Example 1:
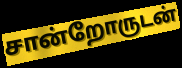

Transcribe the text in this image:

சான்றோருடன்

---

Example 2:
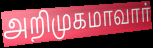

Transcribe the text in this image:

அறிமுகமாவார்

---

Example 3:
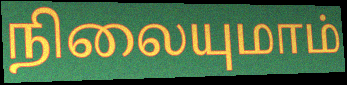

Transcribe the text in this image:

நிலையுமாம்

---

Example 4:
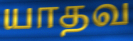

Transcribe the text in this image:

யாதவ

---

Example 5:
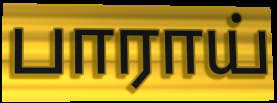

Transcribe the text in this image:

பாராய்